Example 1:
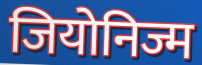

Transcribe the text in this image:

जियोनिज्म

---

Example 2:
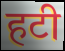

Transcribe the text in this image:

हटी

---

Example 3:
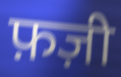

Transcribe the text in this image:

फ़ज़ी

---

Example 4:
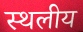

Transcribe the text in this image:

स्थलीय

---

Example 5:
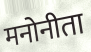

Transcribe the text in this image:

मनोनीता